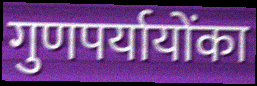
गुणपर्यायोंका